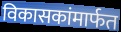
विकासकांमार्फत